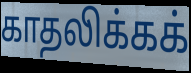
காதலிக்கக்